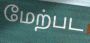
மேற்பட